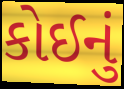
કોઈનું